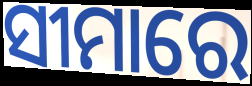
ସୀମାରେ